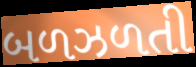
બળઝળતી